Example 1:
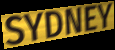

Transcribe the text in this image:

SYDNEY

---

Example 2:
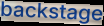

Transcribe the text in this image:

backstage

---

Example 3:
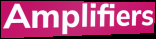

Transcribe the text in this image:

Amplifiers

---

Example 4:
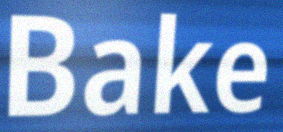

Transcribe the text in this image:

Bake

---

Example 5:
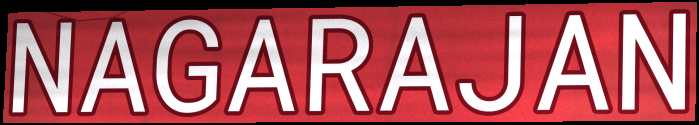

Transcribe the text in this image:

NAGARAJAN